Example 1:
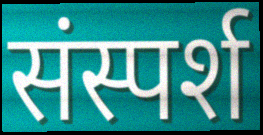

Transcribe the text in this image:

संस्पर्श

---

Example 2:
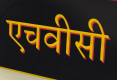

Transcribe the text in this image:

एचवीसी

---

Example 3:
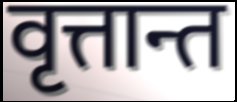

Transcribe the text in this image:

वृत्तान्त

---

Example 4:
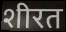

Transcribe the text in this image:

शीरत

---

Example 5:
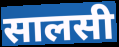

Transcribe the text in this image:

सालसी